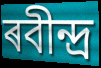
ৰবীন্দ্ৰ